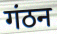
गंठन